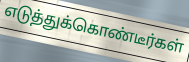
எடுத்துக்கொண்டீர்கள்